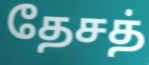
தேசத்